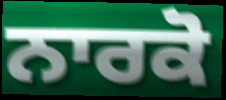
ਨਾਰਕੋ